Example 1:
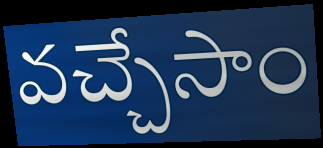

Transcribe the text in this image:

వచ్చేసాం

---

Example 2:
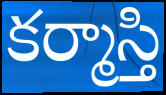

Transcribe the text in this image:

కర్మాస్తి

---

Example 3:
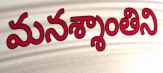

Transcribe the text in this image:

మనశ్శాంతిని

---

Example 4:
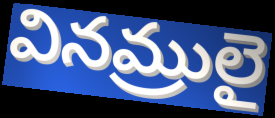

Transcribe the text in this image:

వినమ్రులై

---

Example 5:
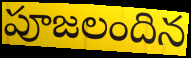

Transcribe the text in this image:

పూజలందిన